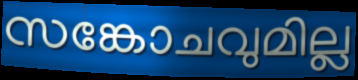
സങ്കോചവുമില്ല